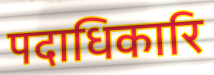
पदाधिकारि